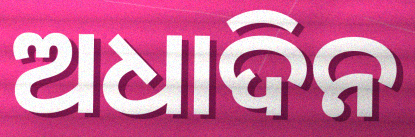
ଅଧାଦିନ